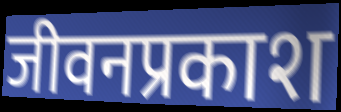
जीवनप्रकाश